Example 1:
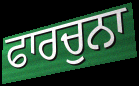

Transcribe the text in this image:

ਫਾਰਚੁਨਾ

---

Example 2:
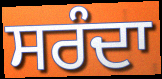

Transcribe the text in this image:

ਸਰੰਦਾ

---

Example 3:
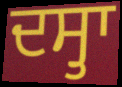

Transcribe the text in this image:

ਦਸ੍ਤਾ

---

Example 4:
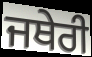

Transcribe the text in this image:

ਜਥੇਰੀ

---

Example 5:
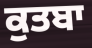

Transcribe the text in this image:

ਕੁਤਬਾ